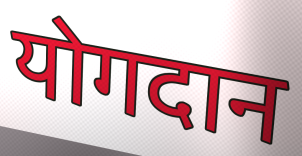
योगदान